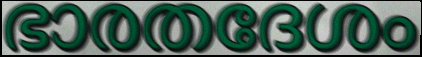
ഭാരതദേശം